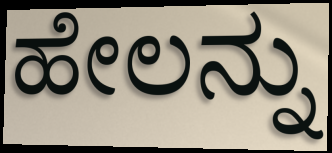
ಹೇಲನ್ನು